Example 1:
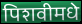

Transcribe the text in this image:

पिशवीमधे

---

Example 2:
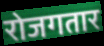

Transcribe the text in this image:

रोजगतार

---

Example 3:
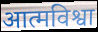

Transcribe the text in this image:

आत्मविश्वा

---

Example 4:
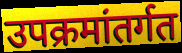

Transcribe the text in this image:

उपक्रमांतर्गत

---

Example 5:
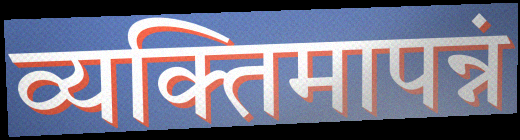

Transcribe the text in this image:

व्यक्तिमापन्नं